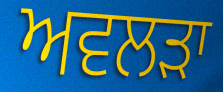
ਅਵਲੜਾ